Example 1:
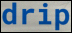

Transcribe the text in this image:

drip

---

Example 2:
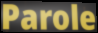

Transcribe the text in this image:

Parole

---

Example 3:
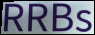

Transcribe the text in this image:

RRBs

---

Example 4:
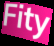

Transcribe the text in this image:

Fity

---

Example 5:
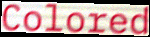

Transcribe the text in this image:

Colored